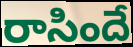
రాసిందే